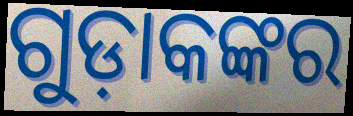
ଗୁଡ଼ାକଙ୍କର